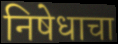
निषेधाचा